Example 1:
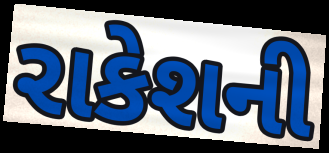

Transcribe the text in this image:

રાકેશની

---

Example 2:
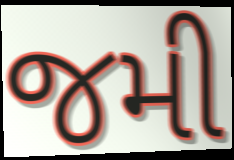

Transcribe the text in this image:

જમી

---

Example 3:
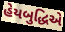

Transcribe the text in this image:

હેયબુદ્ધિએ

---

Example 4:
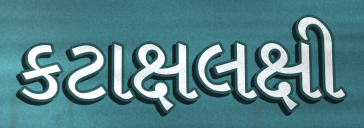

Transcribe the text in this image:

કટાક્ષલક્ષી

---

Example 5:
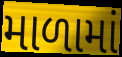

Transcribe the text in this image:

માળામાં